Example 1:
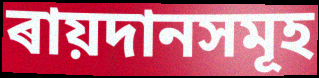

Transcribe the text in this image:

ৰায়দানসমূহ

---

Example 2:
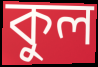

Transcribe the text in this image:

কুল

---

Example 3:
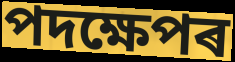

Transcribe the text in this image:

পদক্ষেপৰ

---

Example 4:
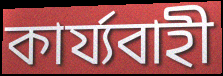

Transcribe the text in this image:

কাৰ্য্যবাহী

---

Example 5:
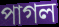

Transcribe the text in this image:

পাগল